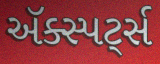
ઍક્સ્પર્ટ્સ